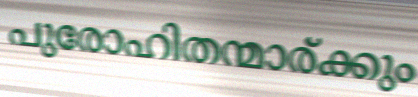
പുരോഹിതന്മാര്ക്കും